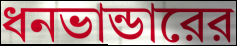
ধনভান্ডারের